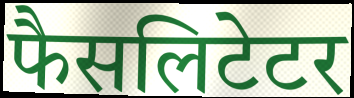
फैसलिटेटर